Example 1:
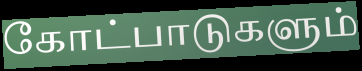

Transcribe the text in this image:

கோட்பாடுகளும்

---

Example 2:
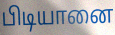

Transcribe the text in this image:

பிடியானை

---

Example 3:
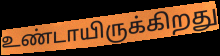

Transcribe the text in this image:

உண்டாயிருக்கிறது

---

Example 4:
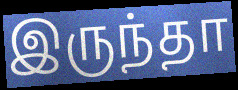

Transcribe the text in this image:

இருந்தா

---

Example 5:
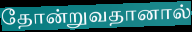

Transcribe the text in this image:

தோன்றுவதானால்